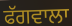
ਫੱਗਵਾਲਾ